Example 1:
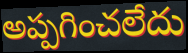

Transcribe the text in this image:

అప్పగించలేదు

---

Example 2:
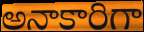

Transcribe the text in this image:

అనాకారిగా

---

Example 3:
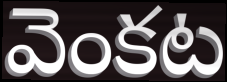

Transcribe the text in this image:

వెంకట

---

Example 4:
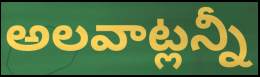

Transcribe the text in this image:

అలవాట్లన్నీ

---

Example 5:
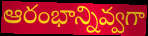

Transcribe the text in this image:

ఆరంభాన్నివ్వగా